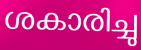
ശകാരിച്ചു